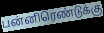
பன்னிரெண்டுக்கு